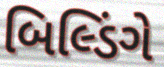
બિલ્ડિંગે